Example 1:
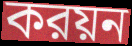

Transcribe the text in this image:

করয়ন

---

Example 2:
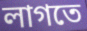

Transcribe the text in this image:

লাগতে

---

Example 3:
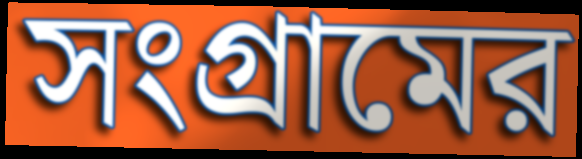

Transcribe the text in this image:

সংগ্রামের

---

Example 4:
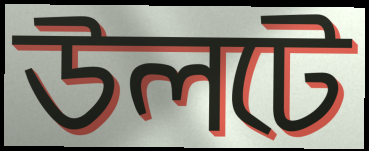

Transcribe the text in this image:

উলটে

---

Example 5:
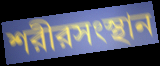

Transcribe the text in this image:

শরীরসংস্থান